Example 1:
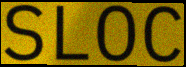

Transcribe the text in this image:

SLOC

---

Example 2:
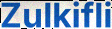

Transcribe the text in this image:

Zulkifli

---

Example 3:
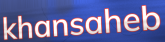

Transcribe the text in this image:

khansaheb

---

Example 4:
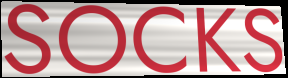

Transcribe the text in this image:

SOCKS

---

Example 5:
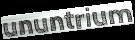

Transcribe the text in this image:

ununtrium